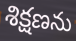
శిక్షణను